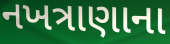
નખત્રાણાના